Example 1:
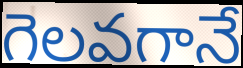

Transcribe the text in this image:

గెలవగానే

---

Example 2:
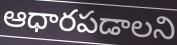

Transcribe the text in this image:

ఆధారపడాలని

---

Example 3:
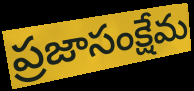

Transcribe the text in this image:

ప్రజాసంక్షేమ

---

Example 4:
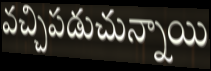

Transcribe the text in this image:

వచ్చిపడుచున్నాయి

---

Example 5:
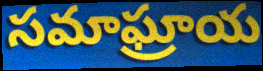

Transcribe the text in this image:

సమాఘ్రాయ